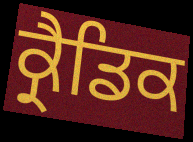
ਕ੍ਰੈਡਿਕ